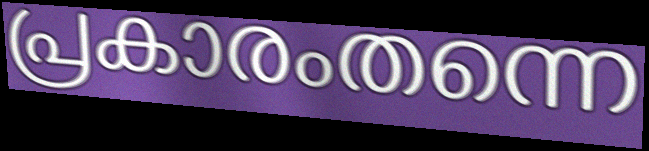
പ്രകാരംതന്നെ